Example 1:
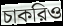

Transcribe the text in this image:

চাকরিও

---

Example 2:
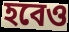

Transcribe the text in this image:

হবেও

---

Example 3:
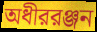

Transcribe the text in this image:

অধীররঞ্জন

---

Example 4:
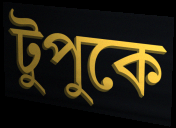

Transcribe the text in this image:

টুপুকে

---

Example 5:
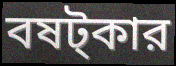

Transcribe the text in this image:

বষট্কার